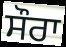
ਸੌਰਾ